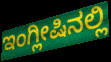
ಇಂಗ್ಲೀಷಿನಲ್ಲಿ